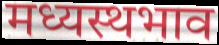
मध्यस्थभाव